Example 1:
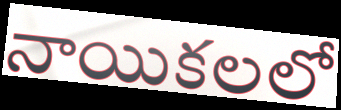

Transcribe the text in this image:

నాయికలలో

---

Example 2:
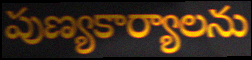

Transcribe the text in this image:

పుణ్యకార్యాలను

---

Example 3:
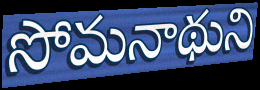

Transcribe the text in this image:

సోమనాథుని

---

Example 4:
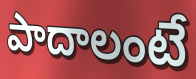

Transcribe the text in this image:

పాదాలంటే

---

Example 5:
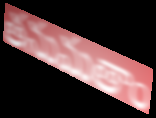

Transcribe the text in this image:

తనుమతాం